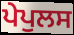
ਪੇਪੁਲਸ